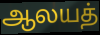
ஆலயத்